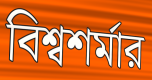
বিশ্বশর্মার